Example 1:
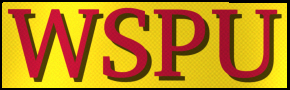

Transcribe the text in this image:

WSPU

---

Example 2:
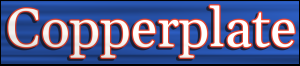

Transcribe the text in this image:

Copperplate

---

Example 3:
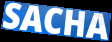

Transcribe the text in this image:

SACHA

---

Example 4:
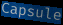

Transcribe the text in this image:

Capsule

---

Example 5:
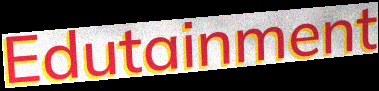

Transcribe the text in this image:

Edutainment